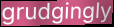
grudgingly